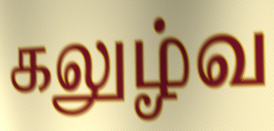
கலுழ்வ